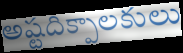
అష్టదిక్పాలకులు